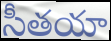
సీతయా